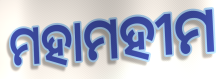
ମହାମହୀମ